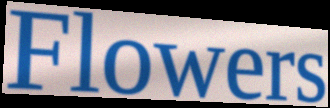
Flowers